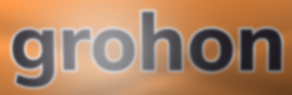
grohon